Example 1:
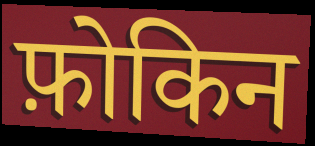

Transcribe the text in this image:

फ़ोकिन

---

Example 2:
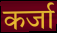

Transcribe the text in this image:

कर्जा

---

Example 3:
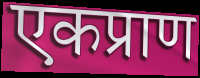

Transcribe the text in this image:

एकप्राण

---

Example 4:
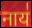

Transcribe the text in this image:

नाय॑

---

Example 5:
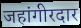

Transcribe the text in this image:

जहांगीरदार